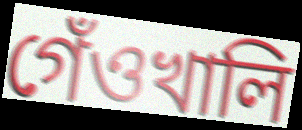
গেঁওখালি